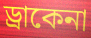
ড্রাকেনা